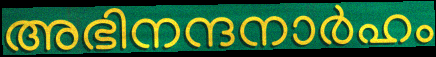
അഭിനന്ദനാർഹം